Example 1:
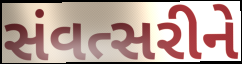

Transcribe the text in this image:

સંવત્સરીને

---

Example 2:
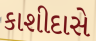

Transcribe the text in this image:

કાશીદાસે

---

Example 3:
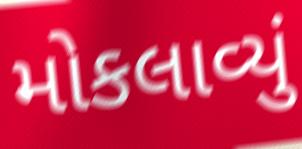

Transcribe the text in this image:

મોકલાવ્યું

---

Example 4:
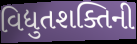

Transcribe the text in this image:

વિદ્યુતશક્તિની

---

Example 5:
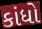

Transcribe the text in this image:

કાંધો